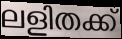
ലളിതക്ക്